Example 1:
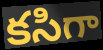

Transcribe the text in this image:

కసిగా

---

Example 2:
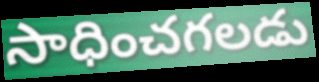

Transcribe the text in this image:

సాధించగలడు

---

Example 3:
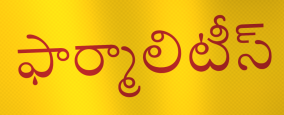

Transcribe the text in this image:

ఫార్మాలిటీస్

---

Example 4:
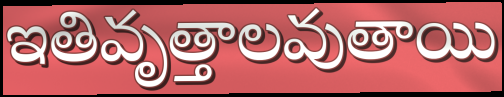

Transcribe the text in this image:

ఇతివృత్తాలవుతాయి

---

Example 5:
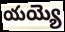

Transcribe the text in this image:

యయ్యె